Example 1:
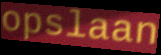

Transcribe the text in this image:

opslaan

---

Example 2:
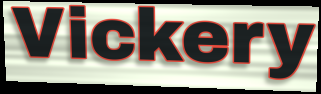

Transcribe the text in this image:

Vickery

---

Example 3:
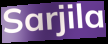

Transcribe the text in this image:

Sarjila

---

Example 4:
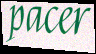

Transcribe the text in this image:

pacer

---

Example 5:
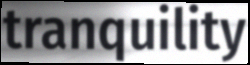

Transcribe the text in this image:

tranquility